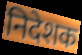
निदेशक